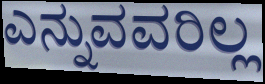
ಎನ್ನುವವರಿಲ್ಲ